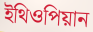
ইথিওপিয়ান